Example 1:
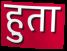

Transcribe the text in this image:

हुता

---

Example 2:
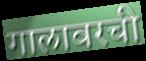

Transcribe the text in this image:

गालावरची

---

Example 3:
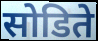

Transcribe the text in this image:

सोडिते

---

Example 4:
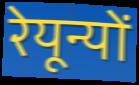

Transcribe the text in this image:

रेयून्यों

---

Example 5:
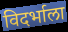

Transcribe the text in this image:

विदर्भाला